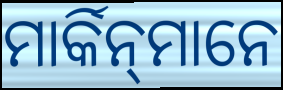
ମାର୍କିନ୍‌ମାନେ